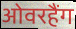
ओवरहैंग